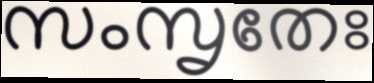
സംസൃതേഃ